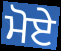
ਮੋਏ